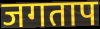
जगताप